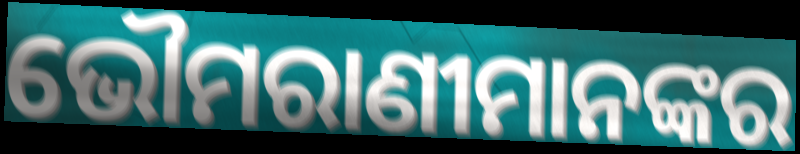
ଭୌମରାଣୀମାନଙ୍କର